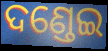
ଦଣ୍ଡେଇ